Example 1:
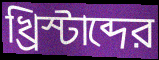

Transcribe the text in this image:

খ্রিস্টাব্দের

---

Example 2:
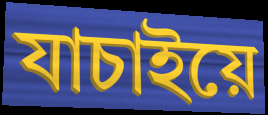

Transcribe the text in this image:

যাচাইয়ে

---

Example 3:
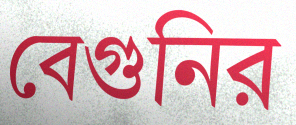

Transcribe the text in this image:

বেগুনির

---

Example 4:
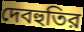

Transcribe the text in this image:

দেবহুতির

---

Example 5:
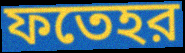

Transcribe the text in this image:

ফতেহর